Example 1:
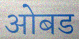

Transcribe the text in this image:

ओबड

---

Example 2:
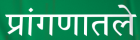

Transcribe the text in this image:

प्रांगणातले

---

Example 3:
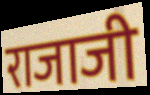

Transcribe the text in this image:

राजाजी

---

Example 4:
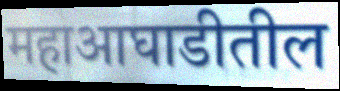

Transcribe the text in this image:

महाआघाडीतील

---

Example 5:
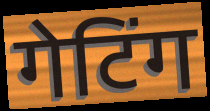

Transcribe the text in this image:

गेटिंग